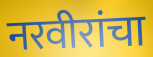
नरवीरांचा